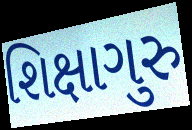
શિક્ષાગુરુ